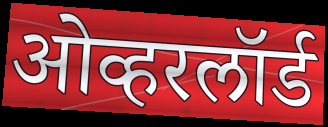
ओव्हरलॉर्ड